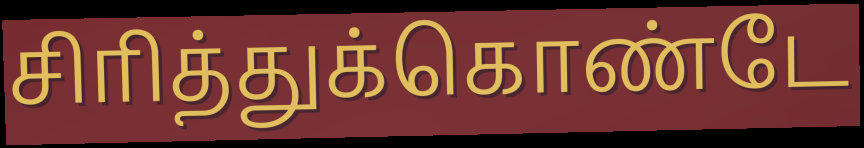
சிரித்துக்கொண்டே